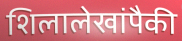
शिलालेखांपैकी